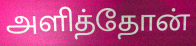
அளித்தோன்